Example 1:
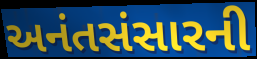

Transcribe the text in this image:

અનંતસંસારની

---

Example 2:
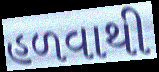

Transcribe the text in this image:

હળવાથી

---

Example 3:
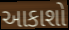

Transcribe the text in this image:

આકાશો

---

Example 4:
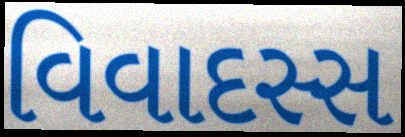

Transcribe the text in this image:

વિવાદસ્સ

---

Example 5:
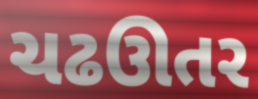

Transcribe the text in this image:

ચઢઊતર